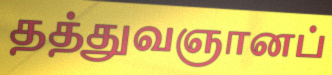
தத்துவஞானப்